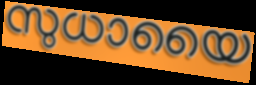
സുധായൈ